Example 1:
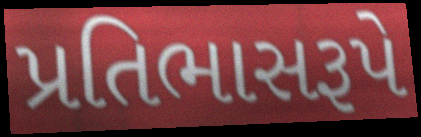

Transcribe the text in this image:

પ્રતિભાસરૂપે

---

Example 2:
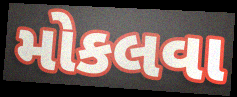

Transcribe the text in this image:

મોકલવા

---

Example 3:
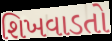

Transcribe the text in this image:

શિખવાડતો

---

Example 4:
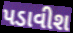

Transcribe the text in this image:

પડાવીશ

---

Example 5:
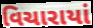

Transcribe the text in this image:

વિચારાયાં